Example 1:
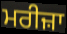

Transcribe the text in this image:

ਮਰੀਜ਼ਾ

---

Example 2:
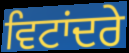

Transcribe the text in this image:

ਵਿਟਾਂਦਰੇ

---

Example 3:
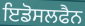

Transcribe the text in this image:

ਇਡੋਸਲਫੈਨ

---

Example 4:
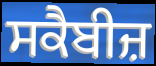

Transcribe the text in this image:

ਸਕੈਬੀਜ਼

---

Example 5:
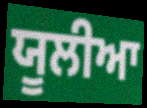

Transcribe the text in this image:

ਯੂਲੀਆ